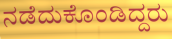
ನಡೆದುಕೊಂಡಿದ್ದರು